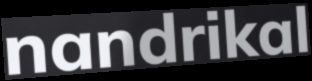
nandrikal